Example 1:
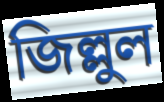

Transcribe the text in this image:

জিল্লুল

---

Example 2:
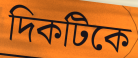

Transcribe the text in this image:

দিকটিকে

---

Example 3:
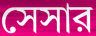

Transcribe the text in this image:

সেসার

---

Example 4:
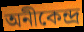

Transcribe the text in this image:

অনীকেন্দ্র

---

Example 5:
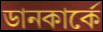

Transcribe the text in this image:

ডানকার্কে